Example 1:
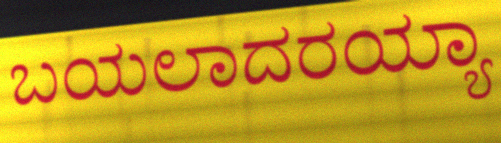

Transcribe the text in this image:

ಬಯಲಾದರಯ್ಯಾ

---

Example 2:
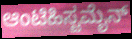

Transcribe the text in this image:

ಆಂಟಿಹಿಸ್ಟಮೈನ್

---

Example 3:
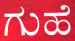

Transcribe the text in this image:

ಗುಹೆ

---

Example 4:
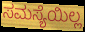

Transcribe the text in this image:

ಸಮಸ್ಯೆಯಿಲ್ಲ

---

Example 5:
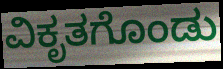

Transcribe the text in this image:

ವಿಕೃತಗೊಂಡು